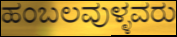
ಹಂಬಲವುಳ್ಳವರು